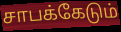
சாபக்கேடும்